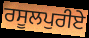
ਰਸੂਲਪੁਰੀਏ